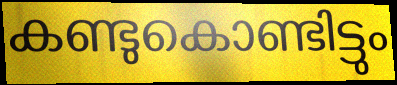
കണ്ടുകൊണ്ടിട്ടും